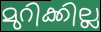
മുറിക്കില്ല